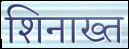
शिनाख्त